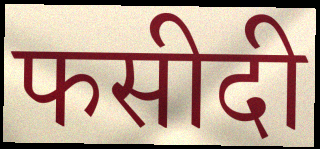
फसीदी